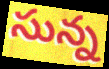
సున్న